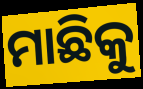
ମାଛିକୁ